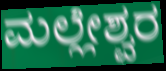
ಮಲ್ಲೇಶ್ವರ